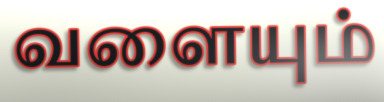
வளையும்